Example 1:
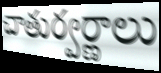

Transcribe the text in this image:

చాతుర్వర్ణాలు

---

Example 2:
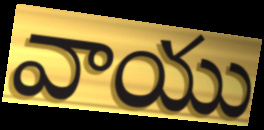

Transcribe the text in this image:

వాయు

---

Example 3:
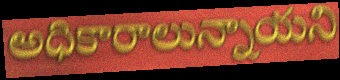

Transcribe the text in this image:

అధికారాలున్నాయని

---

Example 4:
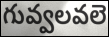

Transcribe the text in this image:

గువ్వలవలె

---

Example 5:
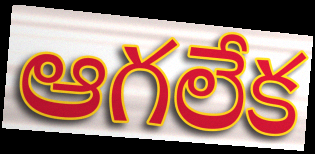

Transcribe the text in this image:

ఆగలేక